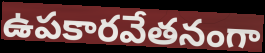
ఉపకారవేతనంగా